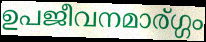
ഉപജീവനമാര്ഗ്ഗം